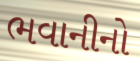
ભવાનીનો